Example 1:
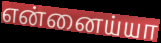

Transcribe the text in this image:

என்னைய்யா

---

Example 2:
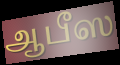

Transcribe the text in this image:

ஆபீஸ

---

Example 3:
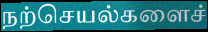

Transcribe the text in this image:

நற்செயல்களைச்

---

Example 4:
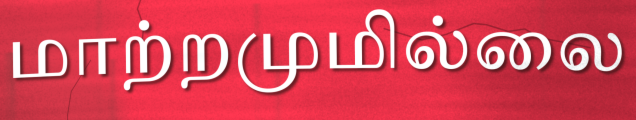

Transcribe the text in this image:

மாற்றமுமில்லை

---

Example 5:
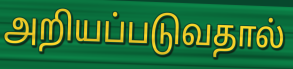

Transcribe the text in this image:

அறியப்படுவதால்